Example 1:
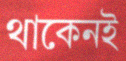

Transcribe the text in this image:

থাকেনই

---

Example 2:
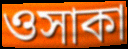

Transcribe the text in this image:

ওসাকা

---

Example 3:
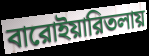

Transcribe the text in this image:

বারোইয়ারিতলায়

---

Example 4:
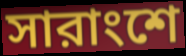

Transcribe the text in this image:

সারাংশে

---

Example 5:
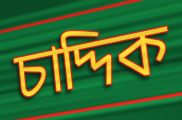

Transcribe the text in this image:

চাদ্দিক